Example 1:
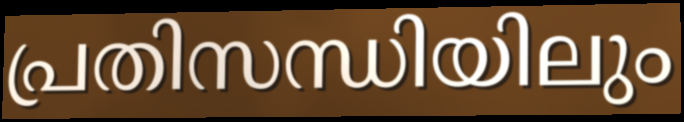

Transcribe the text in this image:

പ്രതിസന്ധിയിലും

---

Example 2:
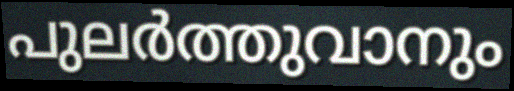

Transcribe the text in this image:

പുലർത്തുവാനും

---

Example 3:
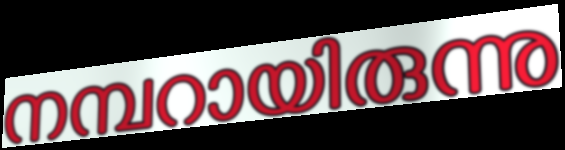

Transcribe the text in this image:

നമ്പറായിരുന്നു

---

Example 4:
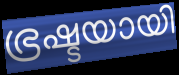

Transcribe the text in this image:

ഭ്രഷ്ടയായി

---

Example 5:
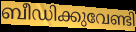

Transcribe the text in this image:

ബീഡിക്കുവേണ്ടി